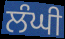
ਲੰਘੀ